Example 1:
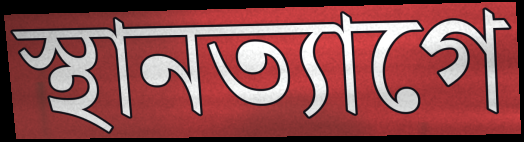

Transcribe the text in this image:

স্থানত্যাগে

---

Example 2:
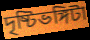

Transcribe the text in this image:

দৃষ্টিভঙ্গিটা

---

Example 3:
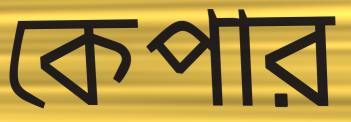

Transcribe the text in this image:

কেপার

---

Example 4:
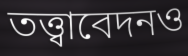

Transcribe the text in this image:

তত্ত্বাবেদনও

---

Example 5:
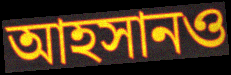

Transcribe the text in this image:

আহসানও